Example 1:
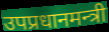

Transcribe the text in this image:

उपप्रधानमन्त्री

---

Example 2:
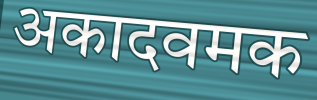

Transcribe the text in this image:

अकादवमक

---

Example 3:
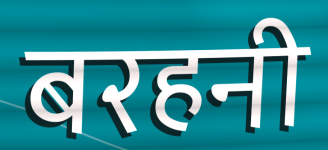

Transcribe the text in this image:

बरहनी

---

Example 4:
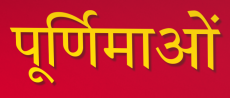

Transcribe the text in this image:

पूर्णिमाओं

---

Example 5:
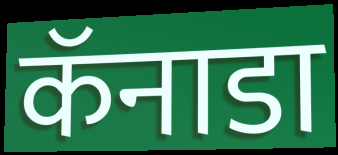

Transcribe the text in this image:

कॅनाडा